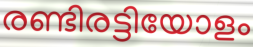
രണ്ടിരട്ടിയോളം